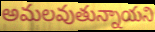
అమలవుతున్నాయని